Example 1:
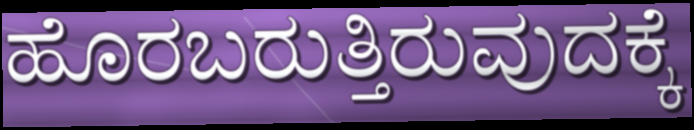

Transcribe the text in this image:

ಹೊರಬರುತ್ತಿರುವುದಕ್ಕೆ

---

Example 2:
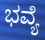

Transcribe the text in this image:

ಭವ್ಯೆ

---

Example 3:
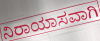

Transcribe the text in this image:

ನಿರಾಯಾಸವಾಗಿ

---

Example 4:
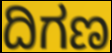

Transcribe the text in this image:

ದಿಗಣ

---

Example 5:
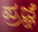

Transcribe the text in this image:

ಪ್ರಜ್ಞೆ